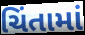
ચિંતામાં